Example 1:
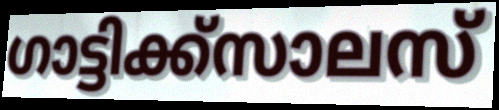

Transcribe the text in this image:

ഗാട്ടിക്ക്സാലസ്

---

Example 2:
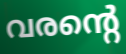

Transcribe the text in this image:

വരന്റെ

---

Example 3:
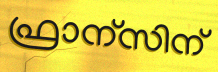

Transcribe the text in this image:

ഫ്രാന്സിന്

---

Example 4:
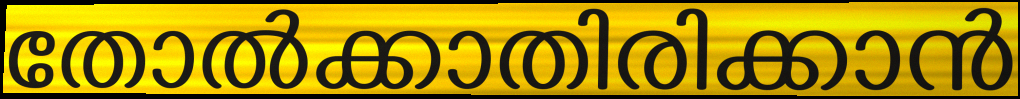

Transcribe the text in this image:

തോൽക്കാതിരിക്കാൻ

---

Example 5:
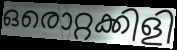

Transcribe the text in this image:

ഒരൊറ്റക്കിളി